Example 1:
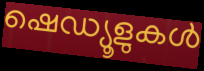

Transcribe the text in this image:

ഷെഡ്യൂളുകൾ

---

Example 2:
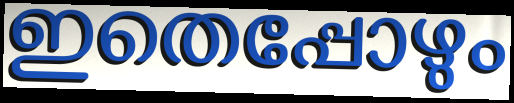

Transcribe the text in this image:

ഇതെപ്പോഴും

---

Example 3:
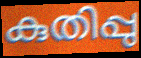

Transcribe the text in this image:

കുതിപ്പു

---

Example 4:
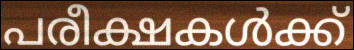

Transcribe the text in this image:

പരീക്ഷകൾക്ക്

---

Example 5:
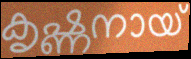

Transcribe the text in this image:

കൃഷ്ണനായ്